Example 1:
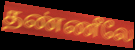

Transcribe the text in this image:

தண்ணீலே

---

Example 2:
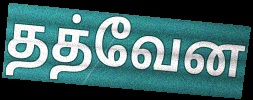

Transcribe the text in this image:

தத்வேன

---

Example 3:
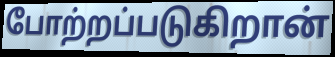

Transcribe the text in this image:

போற்றப்படுகிறான்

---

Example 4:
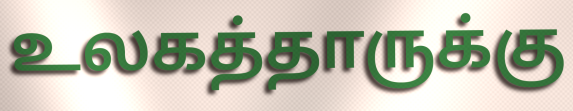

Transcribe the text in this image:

உலகத்தாருக்கு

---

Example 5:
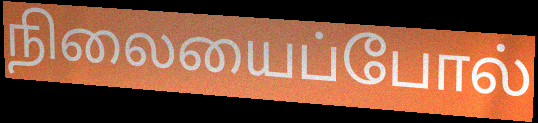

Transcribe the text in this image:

நிலையைப்போல்